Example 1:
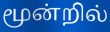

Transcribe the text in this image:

மூன்றில்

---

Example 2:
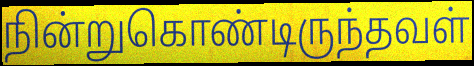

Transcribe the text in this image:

நின்றுகொண்டிருந்தவள்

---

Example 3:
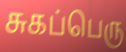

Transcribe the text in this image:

சுகப்பெரு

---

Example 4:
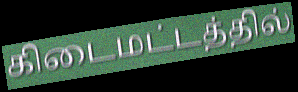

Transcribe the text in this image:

கிடைமட்டத்தில்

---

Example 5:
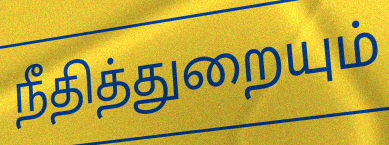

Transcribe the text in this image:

நீதித்துறையும்